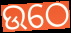
ଉଠେ